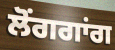
ਲੋਂਗਗਾਂਗ